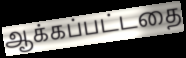
ஆக்கப்பட்டதை